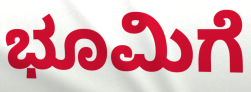
ಭೂಮಿಗೆ